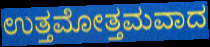
ಉತ್ತಮೋತ್ತಮವಾದ